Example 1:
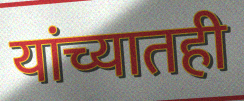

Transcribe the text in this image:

यांच्यातही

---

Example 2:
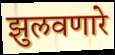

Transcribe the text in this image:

झुलवणारे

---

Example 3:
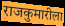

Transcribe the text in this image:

राजकुमारीला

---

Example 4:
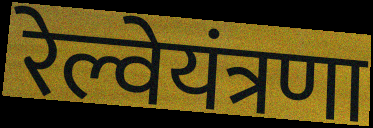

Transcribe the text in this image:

रेल्वेयंत्रणा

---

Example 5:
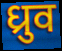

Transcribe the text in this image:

ध्रुव